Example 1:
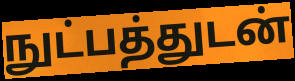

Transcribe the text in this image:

நுட்பத்துடன்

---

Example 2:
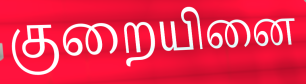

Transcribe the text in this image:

குறையினை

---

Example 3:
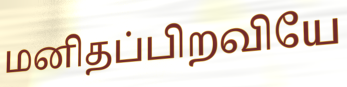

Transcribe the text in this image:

மனிதப்பிறவியே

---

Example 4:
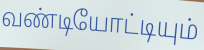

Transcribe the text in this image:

வண்டியோட்டியும்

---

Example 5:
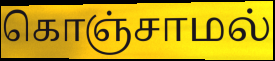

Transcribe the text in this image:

கொஞ்சாமல்